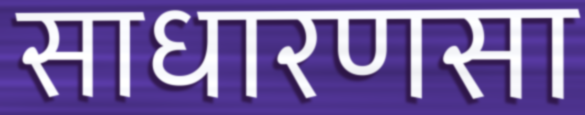
साधारणसा